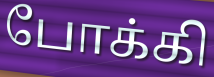
போக்கி